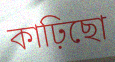
কাঢ়িছো